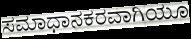
ಸಮಾಧಾನಕರವಾಗಿಯೂ